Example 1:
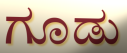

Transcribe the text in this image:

ಗೂಡು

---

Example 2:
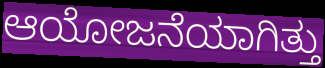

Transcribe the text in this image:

ಆಯೋಜನೆಯಾಗಿತ್ತು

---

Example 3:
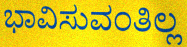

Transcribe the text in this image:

ಭಾವಿಸುವಂತಿಲ್ಲ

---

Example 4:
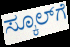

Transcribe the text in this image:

ಸ್ಕೂಲ್‌ಗೆ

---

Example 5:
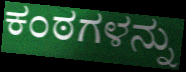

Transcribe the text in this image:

ಕಂಠಗಳನ್ನು